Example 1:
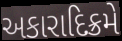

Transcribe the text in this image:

અકારાદિક્રમે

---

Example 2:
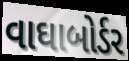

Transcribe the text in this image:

વાઘાબોર્ડર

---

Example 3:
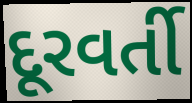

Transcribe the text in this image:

દૂરવર્તી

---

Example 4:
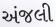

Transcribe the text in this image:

અંજલી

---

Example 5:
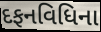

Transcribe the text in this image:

દફનવિધિના